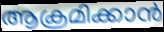
ആക്രമിക്കാൻ